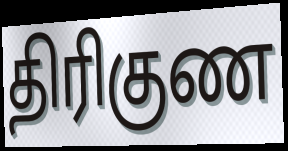
திரிகுண